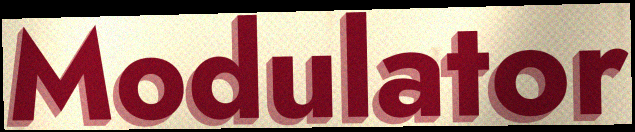
Modulator